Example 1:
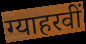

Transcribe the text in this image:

ग्याहरवीं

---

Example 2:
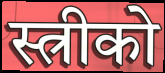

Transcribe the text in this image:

स्त्रीको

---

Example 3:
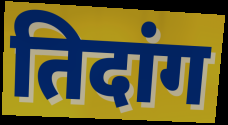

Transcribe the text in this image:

तिदांग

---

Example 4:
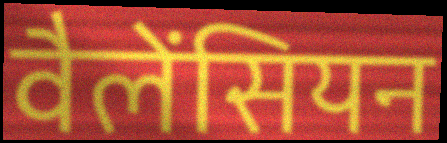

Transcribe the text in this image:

वैलेंसियन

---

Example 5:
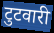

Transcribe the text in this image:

टुटवारी